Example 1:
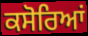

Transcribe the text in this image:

ਕਸੋਰਿਆਂ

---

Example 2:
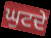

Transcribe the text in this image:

ਘੁਟਦੇ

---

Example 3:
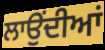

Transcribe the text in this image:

ਲਾਉੰਦੀਆਂ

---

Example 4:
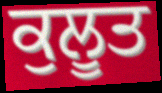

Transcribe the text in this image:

ਕੁਲੂਤ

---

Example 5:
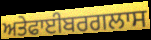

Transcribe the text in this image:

ਅਤੇਫਾਈਬਰਗਲਾਸ